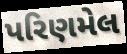
પરિણમેલ